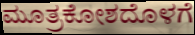
ಮೂತ್ರಕೋಶದೊಳಗೆ